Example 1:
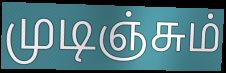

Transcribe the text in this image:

முடிஞ்சும்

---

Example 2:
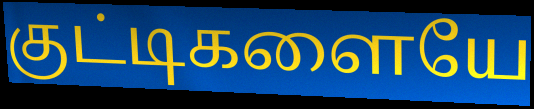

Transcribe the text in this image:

குட்டிகளையே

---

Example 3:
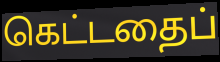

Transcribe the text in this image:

கெட்டதைப்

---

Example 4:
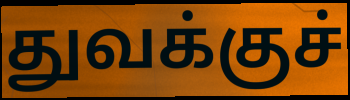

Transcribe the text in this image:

துவக்குச்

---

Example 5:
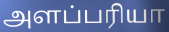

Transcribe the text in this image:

அளப்பரியா